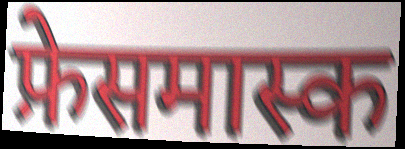
फ़ेसमास्क